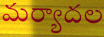
మర్యాదల